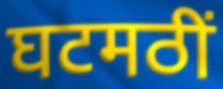
घटमठीं